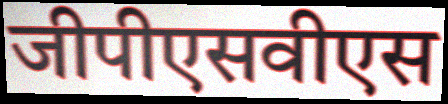
जीपीएसवीएस